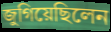
জুগিয়েছিলেন